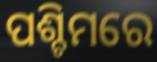
ପଶ୍ଚିମରେ